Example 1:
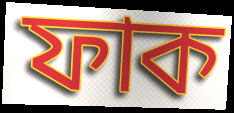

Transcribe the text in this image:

ফাক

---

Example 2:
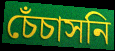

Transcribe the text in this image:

চেঁচাসনি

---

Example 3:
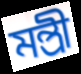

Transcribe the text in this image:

মন্ত্রী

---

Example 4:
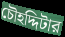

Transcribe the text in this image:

চৌহদ্দিটার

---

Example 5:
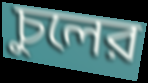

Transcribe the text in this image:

চুলের